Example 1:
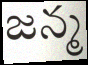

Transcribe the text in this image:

జన్మ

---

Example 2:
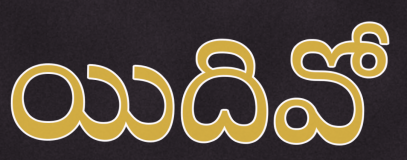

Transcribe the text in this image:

యిదివో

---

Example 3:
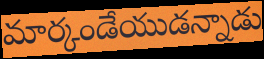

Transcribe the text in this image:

మార్కండేయుడన్నాడు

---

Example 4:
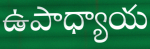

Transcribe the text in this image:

ఉపాధ్యాయ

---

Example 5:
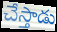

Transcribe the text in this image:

చేస్తాడు